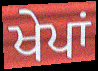
ਖੇਪਾਂ